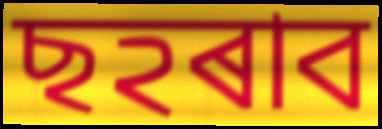
ছহৰাব